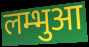
लम्भुआ